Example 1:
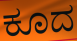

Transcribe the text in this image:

ಕೂದ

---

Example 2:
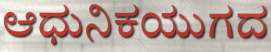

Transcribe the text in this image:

ಆಧುನಿಕಯುಗದ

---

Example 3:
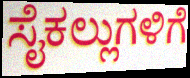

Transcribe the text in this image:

ಸೈಕಲ್ಲುಗಳಿಗೆ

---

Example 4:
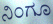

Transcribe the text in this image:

ನಿಂಗೂ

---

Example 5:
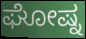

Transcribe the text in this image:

ಘೋಷ್ನ